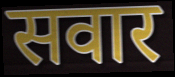
सवार